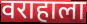
वराहाला